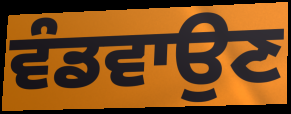
ਵੰਡਵਾਉਣ